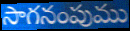
సాగనంపుము